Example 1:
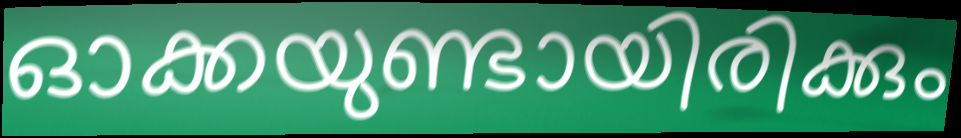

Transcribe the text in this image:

ഓക്കയുണ്ടായിരിക്കും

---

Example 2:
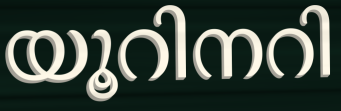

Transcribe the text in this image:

യൂറിനറി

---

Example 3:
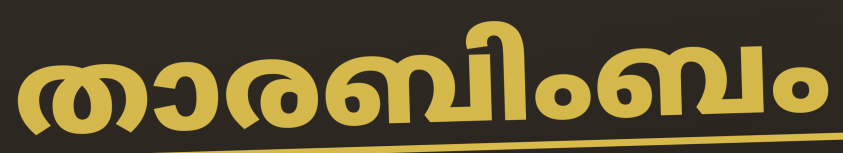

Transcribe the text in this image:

താരബിംബം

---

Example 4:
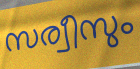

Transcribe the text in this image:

സര്വീസും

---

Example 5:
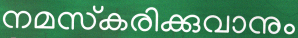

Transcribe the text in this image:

നമസ്‌കരിക്കുവാനും